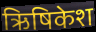
ऋिषिकेश